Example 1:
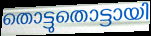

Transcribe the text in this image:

തൊട്ടുതൊട്ടായി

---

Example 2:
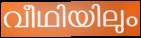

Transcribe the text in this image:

വീഥിയിലും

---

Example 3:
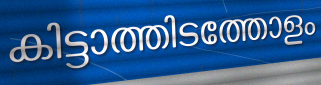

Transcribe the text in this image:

കിട്ടാത്തിടത്തോളം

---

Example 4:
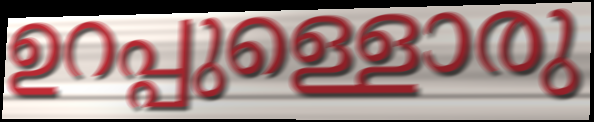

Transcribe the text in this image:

ഉറപ്പുള്ളൊരു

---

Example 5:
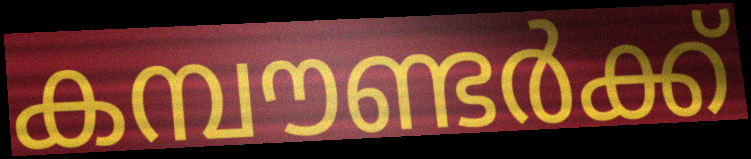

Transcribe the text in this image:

കമ്പൗണ്ടർക്ക്